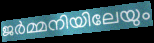
ജർമ്മനിയിലേയും